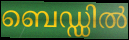
ബെഡ്ഡിൽ